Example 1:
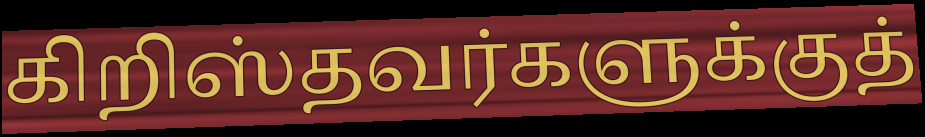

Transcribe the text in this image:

கிறிஸ்தவர்களுக்குத்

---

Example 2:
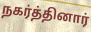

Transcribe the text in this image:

நகர்த்தினார்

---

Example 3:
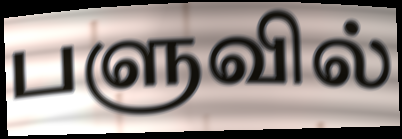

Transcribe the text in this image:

பளுவில்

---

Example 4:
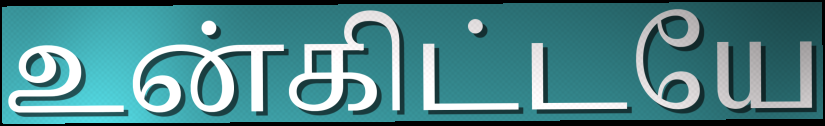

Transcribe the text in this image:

உன்கிட்டயே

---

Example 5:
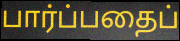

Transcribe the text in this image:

பார்ப்பதைப்